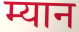
म्यान